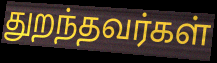
துறந்தவர்கள்